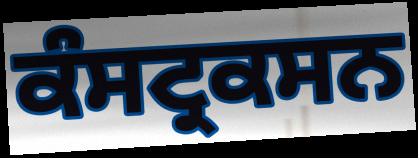
ਕੰਸਟ੍ਰਕਸਨ